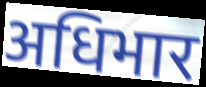
अधिभार